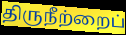
திருநீற்றைப்